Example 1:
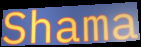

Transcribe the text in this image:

Shama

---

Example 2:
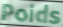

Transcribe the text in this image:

Poids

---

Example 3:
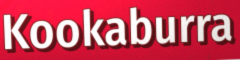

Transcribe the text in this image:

Kookaburra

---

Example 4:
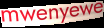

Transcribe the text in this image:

mwenyewe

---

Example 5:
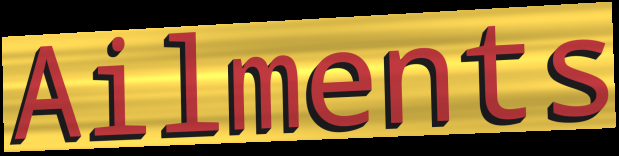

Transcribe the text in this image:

Ailments